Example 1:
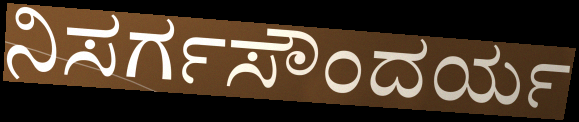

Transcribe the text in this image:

ನಿಸರ್ಗಸೌಂದರ್ಯ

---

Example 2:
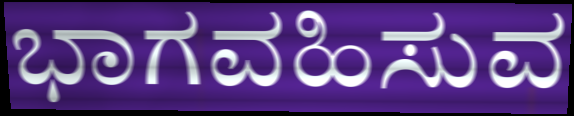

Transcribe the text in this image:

ಭಾಗವಹಿಸುವ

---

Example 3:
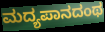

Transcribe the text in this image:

ಮದ್ಯಪಾನದಂಥ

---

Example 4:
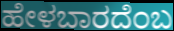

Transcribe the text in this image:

ಹೇಳಬಾರದೆಂಬ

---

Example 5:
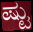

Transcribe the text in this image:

ಷ್ಟು